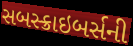
સબસ્ક્રાઇબર્સની